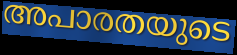
അപാരതയുടെ